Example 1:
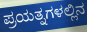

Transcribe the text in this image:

ಪ್ರಯತ್ನಗಳಲ್ಲಿನ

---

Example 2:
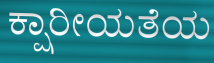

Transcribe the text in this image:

ಕ್ಷಾರೀಯತೆಯ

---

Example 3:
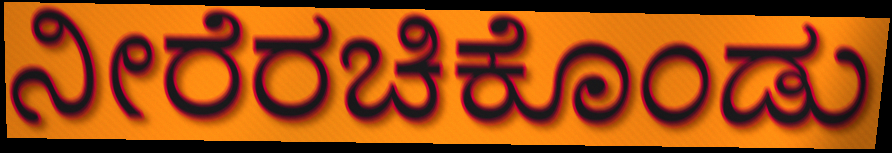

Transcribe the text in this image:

ನೀರೆರಚಿಕೊಂಡು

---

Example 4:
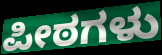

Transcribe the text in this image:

ಪೀಠಗಳು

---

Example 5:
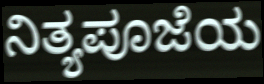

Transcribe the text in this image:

ನಿತ್ಯಪೂಜೆಯ